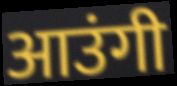
आउंगी